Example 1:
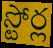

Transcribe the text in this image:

స్టోర్ల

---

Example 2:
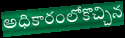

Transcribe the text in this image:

అధికారంలోకొచ్చిన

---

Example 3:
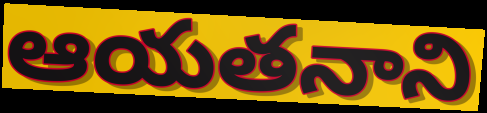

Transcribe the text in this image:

ఆయతనాని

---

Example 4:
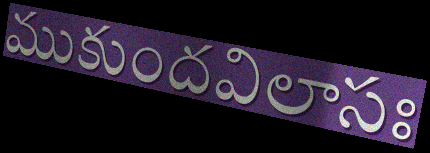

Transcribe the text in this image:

ముకుందవిలాసః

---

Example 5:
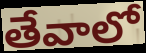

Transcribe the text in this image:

తేవాలో